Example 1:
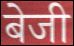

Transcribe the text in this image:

बेजी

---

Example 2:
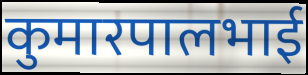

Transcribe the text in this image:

कुमारपालभाई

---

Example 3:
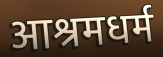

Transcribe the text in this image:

आश्रमधर्म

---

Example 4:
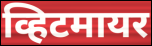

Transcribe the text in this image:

व्हिटमायर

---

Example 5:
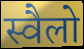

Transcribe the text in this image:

स्वैलो